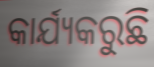
କାର୍ଯ୍ୟକରୁଛି